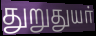
துறுதுயர்